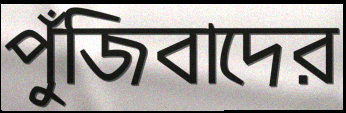
পুঁজিবাদের